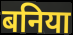
बनिया